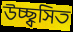
উচ্ছ্বসিত